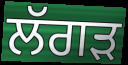
ਲੱਗੜ